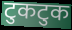
टुकटुक